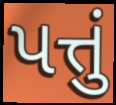
પત્તું